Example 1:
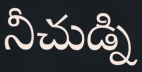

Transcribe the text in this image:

నీచుడ్ని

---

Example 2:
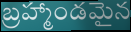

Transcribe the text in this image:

బ్రహ్మాండమైన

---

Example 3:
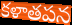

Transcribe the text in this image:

కళాతపన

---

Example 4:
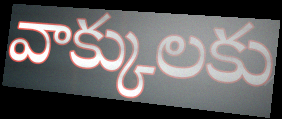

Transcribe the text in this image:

వాక్కులకు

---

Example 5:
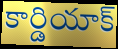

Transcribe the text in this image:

కార్డియాక్